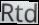
Rtd